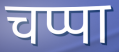
चप्पा